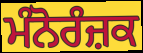
ਮੰਨੋਰੰਜ਼ਕ